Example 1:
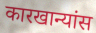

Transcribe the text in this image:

कारखान्यांस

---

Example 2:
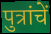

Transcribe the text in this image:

पुत्रांचें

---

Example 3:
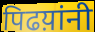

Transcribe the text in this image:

पिढय़ांनी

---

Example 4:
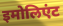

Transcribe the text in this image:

इमोलिएंट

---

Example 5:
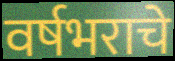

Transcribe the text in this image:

वर्षभराचे